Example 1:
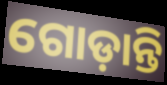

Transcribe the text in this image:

ଗୋଡ଼ାନ୍ତି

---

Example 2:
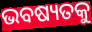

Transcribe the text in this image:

ଭବଷ୍ୟତକୁ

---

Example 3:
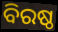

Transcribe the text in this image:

ବିରଷ୍ଠ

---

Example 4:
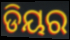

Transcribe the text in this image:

ଡିୟର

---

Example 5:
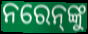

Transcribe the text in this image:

ନରେନ୍‍ଙ୍କୁ